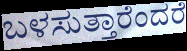
ಬಳಸುತ್ತಾರೆಂದರೆ